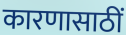
कारणासाठीं